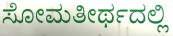
ಸೋಮತೀರ್ಥದಲ್ಲಿ